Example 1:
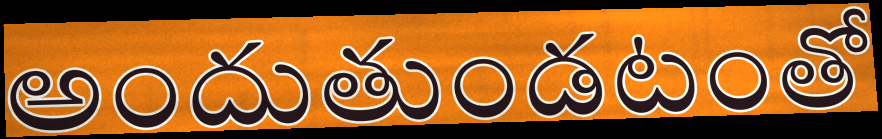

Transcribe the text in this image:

అందుతుండటంతో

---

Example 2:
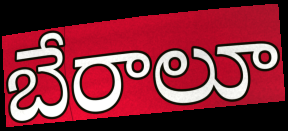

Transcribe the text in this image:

బేరాలూ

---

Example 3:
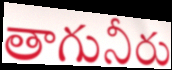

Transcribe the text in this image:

తాగునీరు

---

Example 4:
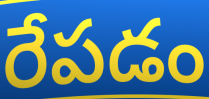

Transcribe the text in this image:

రేపడం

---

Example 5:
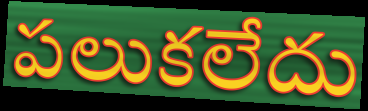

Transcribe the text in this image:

పలుకలేదు